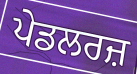
ਪੇਡਲਰਜ਼